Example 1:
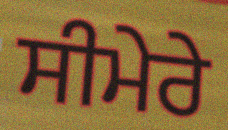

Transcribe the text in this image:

ਸੀਮੇਰੇ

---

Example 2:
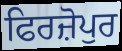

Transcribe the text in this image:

ਫਿਰਜ਼ੋਪੁਰ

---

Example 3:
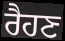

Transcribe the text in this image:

ਰੈਹਣ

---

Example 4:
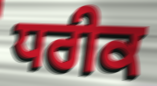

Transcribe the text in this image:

ਧਰੀਕ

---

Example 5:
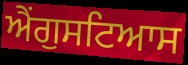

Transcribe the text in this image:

ਐਂਗੁਸਟਿਆਸ